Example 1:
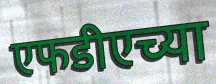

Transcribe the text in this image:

एफडीएच्या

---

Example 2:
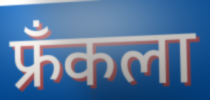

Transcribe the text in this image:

फ्रॅंकला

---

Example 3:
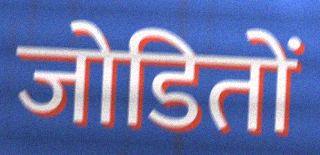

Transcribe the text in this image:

जोडितों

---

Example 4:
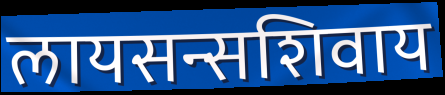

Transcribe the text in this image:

लायसन्सशिवाय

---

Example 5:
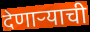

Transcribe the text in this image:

देणाऱ्याची